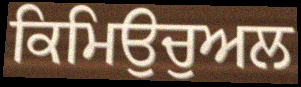
ਕਿਮਿਉਚੁਅਲ